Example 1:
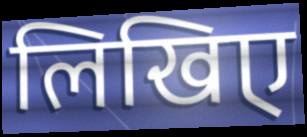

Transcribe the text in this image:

लिखिए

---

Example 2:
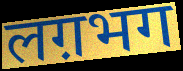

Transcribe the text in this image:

लग़भग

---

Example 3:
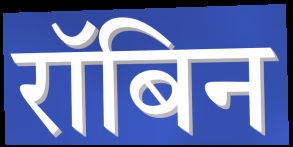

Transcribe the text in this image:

रॉबिन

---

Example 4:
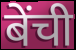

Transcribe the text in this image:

बेंची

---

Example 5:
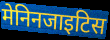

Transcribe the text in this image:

मेनिनजाइटिस